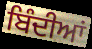
ਬਿੰਦੀਆਂ